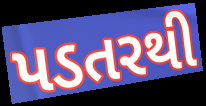
પડતરથી